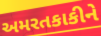
અમરતકાકીને